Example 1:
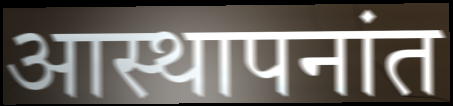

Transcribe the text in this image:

आस्थापनांत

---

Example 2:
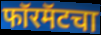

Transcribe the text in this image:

फॉरमॅटचा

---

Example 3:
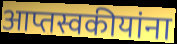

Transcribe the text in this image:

आप्तस्वकीयांना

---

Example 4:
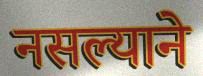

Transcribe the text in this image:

नसल्याने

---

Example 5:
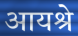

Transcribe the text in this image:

आयश्रे